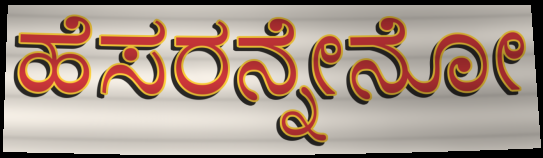
ಹೆಸರನ್ನೇನೋ